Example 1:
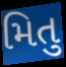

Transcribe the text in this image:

મિતુ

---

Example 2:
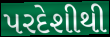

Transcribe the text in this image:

પરદેશીથી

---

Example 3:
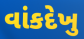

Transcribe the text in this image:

વાંકદેખુ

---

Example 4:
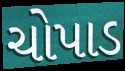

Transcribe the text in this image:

ચોપાડ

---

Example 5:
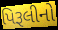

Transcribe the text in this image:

પિરૂલીનો